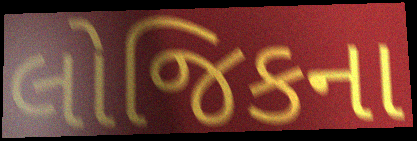
લોજિકના